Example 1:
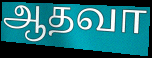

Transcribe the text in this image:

ஆதவா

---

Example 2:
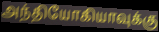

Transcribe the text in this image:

அந்தியோகியாவுக்கு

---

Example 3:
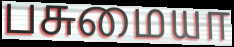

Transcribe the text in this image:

பசுமையா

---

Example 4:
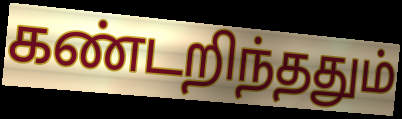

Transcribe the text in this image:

கண்டறிந்ததும்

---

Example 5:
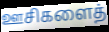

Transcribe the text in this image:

ஊசிகளைத்